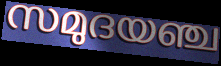
സമുദയഞ്ച